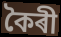
কৈৰী